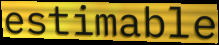
estimable